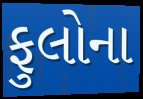
ફુલોના